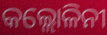
କଲ୍ଲୋଳିନୀ